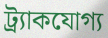
ট্র্যাকযোগ্য